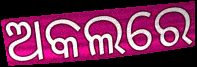
ଅକଲରେ